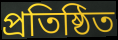
প্ৰতিষ্ঠিত